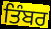
ਤਿੰਬਰ